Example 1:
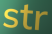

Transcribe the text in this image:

str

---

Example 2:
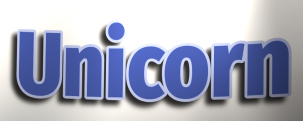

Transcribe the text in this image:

Unicorn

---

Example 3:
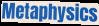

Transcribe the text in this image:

Metaphysics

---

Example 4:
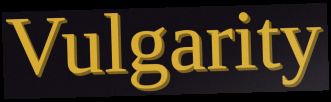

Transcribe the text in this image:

Vulgarity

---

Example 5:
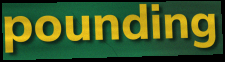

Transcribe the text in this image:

pounding